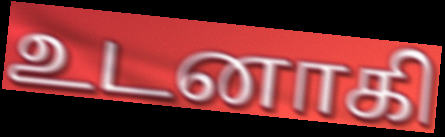
உடனாகி